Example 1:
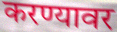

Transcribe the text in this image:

करण्यावर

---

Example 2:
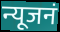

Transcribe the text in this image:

न्यूजनं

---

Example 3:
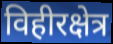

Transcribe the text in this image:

विहीरक्षेत्र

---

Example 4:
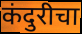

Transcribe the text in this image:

कंदुरीचा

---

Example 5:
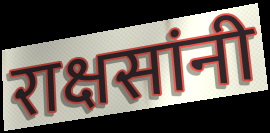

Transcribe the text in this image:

राक्षसांनी